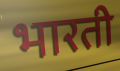
भारती